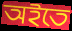
অইতে